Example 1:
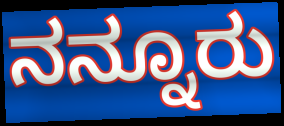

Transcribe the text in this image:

ನನ್ನೂರು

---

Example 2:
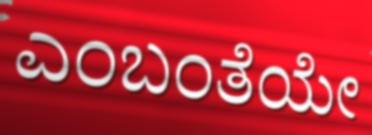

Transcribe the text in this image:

ಎಂಬಂತೆಯೇ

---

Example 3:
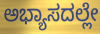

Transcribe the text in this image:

ಅಭ್ಯಾಸದಲ್ಲೇ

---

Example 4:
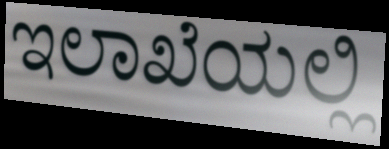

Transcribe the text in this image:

ಇಲಾಖೆಯಲ್ಲಿ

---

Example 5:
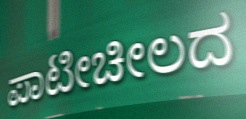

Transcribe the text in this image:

ಪಾಟೀಚೀಲದ